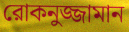
রোকনুজ্জামান